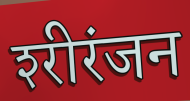
श्रीरंजन